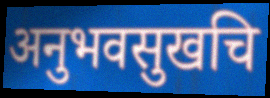
अनुभवसुखचि